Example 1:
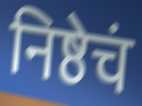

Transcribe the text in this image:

निष्ठेचं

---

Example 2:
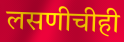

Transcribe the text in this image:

लसणीचीही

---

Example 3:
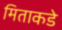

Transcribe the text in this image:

मिताकडे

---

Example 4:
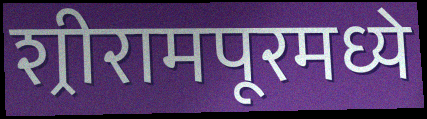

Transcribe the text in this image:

श्रीरामपूरमध्ये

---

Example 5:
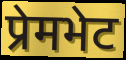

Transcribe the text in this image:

प्रेमभेट